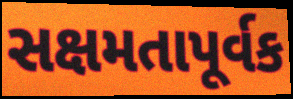
સક્ષમતાપૂર્વક